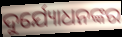
ଦୁର୍ଯ୍ୟୋଧନଙ୍କର